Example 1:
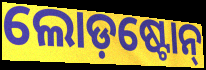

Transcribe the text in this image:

ଲୋଡ଼ଷ୍ଟୋନ୍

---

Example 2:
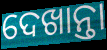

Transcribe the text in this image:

ଦେଖାନ୍ତା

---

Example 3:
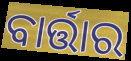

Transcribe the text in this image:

ବାର୍ତ୍ତାର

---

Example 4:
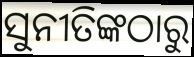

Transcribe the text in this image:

ସୁନୀତିଙ୍କଠାରୁ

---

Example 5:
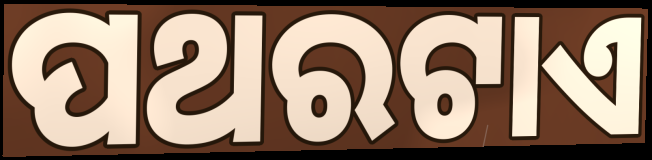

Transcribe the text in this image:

ପଥରଟାଏ